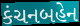
કંચનબહેન